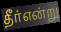
தீர்என்று